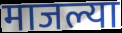
माजल्या